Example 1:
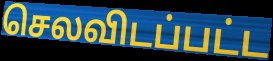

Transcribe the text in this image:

செலவிடப்பட்ட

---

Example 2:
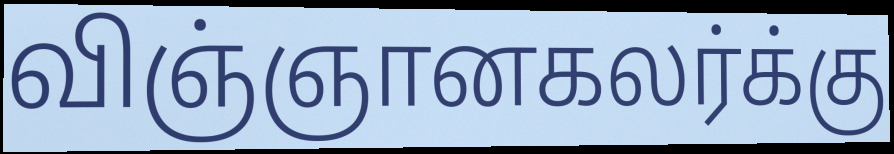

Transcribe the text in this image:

விஞ்ஞானகலர்க்கு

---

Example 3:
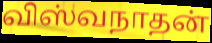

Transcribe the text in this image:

விஸ்வநாதன்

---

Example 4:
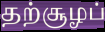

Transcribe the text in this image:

தற்சூழப்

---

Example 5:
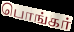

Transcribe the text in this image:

பொங்கர்